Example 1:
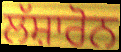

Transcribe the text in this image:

ਲੱਸ਼ਾਰੋਨ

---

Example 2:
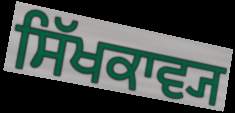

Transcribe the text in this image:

ਸਿੱਖਕਾਵ੍ਯ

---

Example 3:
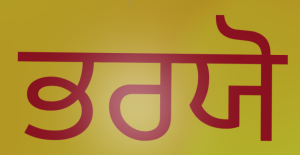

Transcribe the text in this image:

ਭਰਯੋ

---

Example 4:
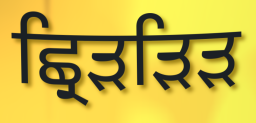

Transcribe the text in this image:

ਛ੍ਰਿੜੜਿੜ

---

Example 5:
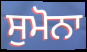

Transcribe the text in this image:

ਸੁਮੋਨਾ